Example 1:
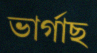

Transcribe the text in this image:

ভাৰ্গাছ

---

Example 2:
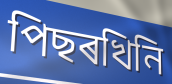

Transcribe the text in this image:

পিছৰখিনি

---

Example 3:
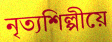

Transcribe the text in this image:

নৃত্যশিল্পীয়ে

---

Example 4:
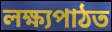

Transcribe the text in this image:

লক্ষ্যপাঠত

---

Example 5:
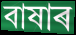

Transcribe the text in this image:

বাষাৰ